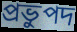
প্রভুপদ